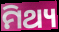
ମିଥ୍ୟ